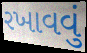
રખાવવું